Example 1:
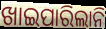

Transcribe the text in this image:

ଖାଇପାରିଲାନି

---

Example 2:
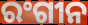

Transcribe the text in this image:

ରଂଗୀନ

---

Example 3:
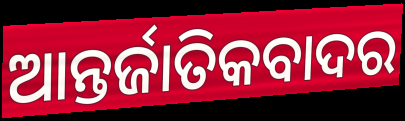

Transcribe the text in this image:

ଆନ୍ତର୍ଜାତିକବାଦର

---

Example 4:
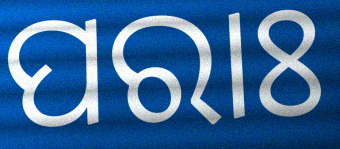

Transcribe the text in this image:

ପରାଃ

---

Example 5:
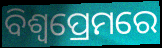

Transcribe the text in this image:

ବିଶ୍ୱପ୍ରେମରେ